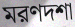
মরণদশা